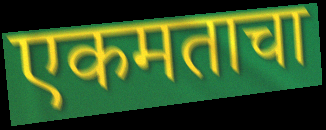
एकमताचा